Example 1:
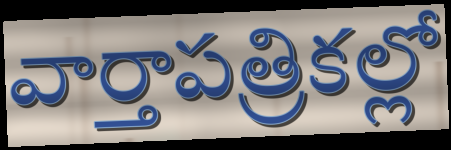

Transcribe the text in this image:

వార్తాపత్రికల్లో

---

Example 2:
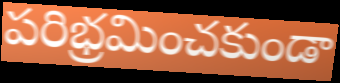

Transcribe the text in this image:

పరిభ్రమించకుండా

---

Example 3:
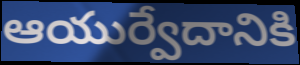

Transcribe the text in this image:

ఆయుర్వేదానికి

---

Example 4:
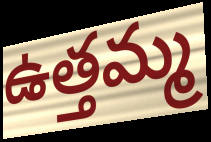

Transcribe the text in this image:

ఉత్తమ్మ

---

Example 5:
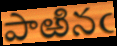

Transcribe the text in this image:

పాఱినఁ